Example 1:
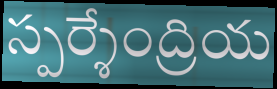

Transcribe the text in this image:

స్పర్శేంద్రియ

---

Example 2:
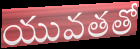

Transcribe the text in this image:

యువతతో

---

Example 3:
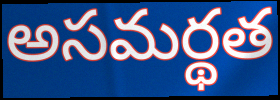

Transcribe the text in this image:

అసమర్థత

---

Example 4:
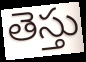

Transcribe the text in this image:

తెస్తు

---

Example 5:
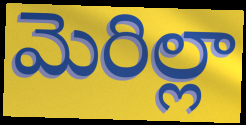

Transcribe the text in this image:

మెరిల్లా